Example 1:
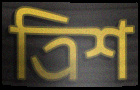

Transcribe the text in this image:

ত্রিশ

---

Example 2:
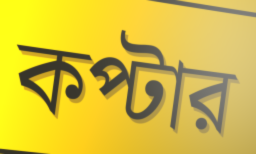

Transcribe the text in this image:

কপ্টার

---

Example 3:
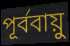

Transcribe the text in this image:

পূর্ববায়ু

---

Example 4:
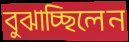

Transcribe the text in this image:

বুঝাচ্ছিলেন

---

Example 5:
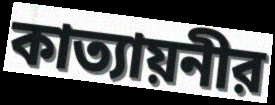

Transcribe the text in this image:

কাত্যায়নীর